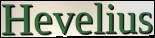
Hevelius